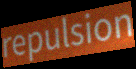
repulsion